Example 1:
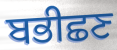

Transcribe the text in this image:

ਬਭੀਛਣ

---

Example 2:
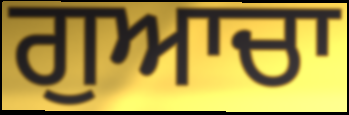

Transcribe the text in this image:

ਗੁਆਚਾ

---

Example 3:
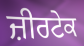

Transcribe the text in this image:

ਜ਼ੀਰਟੇਕ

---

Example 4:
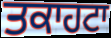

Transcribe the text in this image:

ਤਕਾਹਟਾ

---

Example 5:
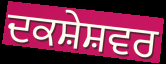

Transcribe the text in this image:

ਦਕਸ਼ੇਸ਼ਵਰ